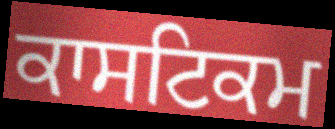
ਕਾਸਟਿਕਮ